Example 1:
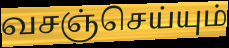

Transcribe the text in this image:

வசஞ்செய்யும்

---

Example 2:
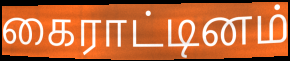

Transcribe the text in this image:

கைராட்டினம்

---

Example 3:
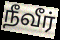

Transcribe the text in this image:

நீவீர்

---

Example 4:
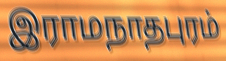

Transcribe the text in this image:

இராமநாதபுரம்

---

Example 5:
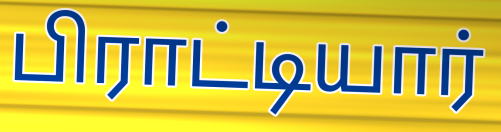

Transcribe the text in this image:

பிராட்டியார்